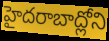
హైదరాబాద్లోని